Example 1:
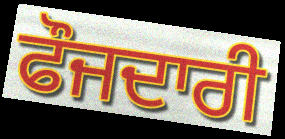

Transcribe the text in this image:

ਫੌਜਦਾਰੀ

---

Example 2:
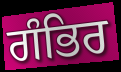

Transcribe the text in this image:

ਗੰਭਿਰ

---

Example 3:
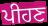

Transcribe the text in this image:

ਪੀਹਣ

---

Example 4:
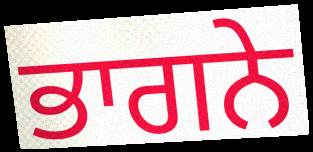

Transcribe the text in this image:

ਭਾਗਨੇ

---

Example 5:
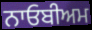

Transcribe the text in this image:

ਨਾਓਬੀਅਮ